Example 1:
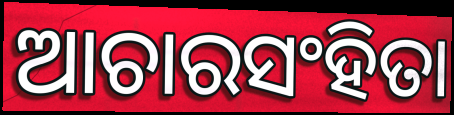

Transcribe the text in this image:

ଆଚାରସଂହିତା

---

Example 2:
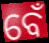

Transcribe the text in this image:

ବେଁ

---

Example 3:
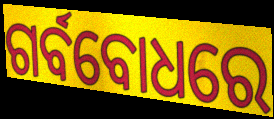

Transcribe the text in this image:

ଗର୍ବବୋଧରେ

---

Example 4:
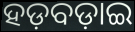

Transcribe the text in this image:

ହଡ଼ବଡ଼ାଇ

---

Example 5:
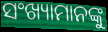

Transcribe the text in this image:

ସଂଖ୍ୟାମାନଙ୍କୁ